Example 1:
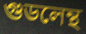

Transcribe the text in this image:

গুডলেন্থ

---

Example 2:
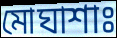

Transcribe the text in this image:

মোঘাশাঃ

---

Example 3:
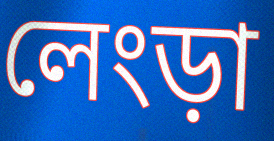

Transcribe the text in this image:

লেংড়া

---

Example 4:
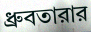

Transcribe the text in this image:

ধ্রুবতারার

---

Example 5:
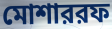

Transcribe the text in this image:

মোশাররফ